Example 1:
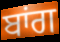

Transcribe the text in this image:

ਬਾਂਗ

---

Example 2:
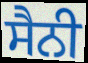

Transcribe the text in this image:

ਸੈਨੀ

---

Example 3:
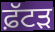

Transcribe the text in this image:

ਫ਼ੱਟੜ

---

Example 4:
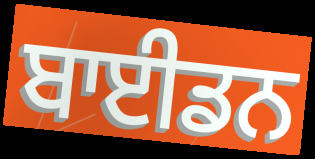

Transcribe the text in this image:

ਬਾਈਡਨ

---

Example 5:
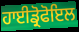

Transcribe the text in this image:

ਹਾਈਡ੍ਰੋਫੋਇਲ